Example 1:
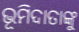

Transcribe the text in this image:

ଭୂମିଦାତାଙ୍କୁ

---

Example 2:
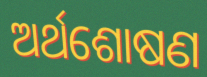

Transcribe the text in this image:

ଅର୍ଥଶୋଷଣ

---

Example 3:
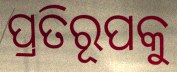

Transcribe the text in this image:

ପ୍ରତିରୂପକୁ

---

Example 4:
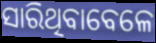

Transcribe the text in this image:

ସାରିଥିବାବେଳେ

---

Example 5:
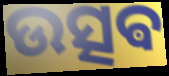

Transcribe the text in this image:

ଉତ୍ସଵ